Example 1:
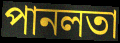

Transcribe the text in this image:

পানলতা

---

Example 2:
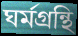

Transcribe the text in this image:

ঘর্মগ্রন্থি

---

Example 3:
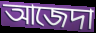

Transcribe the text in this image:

আজেদা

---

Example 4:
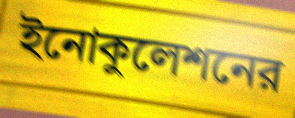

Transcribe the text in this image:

ইনোকুলেশনের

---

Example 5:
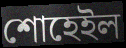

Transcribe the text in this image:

শোহেইল